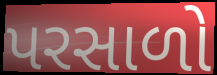
પરસાળો